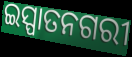
ଇସ୍ପାତନଗରୀ